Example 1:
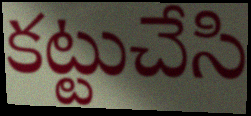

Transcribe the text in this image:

కట్టుచేసి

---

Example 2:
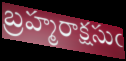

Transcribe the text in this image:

బ్రహ్మరాక్షసుఁ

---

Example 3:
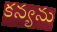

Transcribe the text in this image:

కన్యను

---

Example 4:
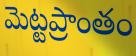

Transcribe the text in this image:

మెట్టప్రాంతం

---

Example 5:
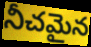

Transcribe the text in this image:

నీచమైన